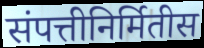
संपत्तीनिर्मितीस